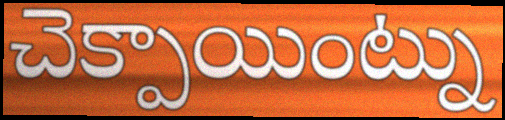
చెక్పాయింట్ను